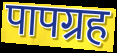
पापग्रह